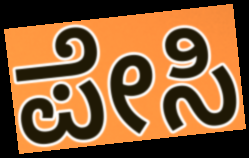
ಪೇಸಿ